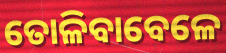
ତୋଳିବାବେଳେ